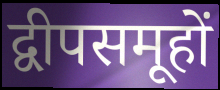
द्वीपसमूहों